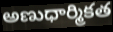
అణుధార్మికత